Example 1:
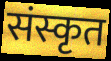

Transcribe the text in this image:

संस्‍कृत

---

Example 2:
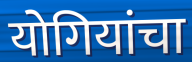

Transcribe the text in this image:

योगियांचा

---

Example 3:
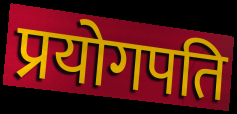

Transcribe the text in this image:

प्रयोगपति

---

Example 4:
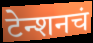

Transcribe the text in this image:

टेन्शनचं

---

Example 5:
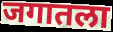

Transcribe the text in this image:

जगातला